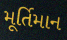
મૂર્તિમાન